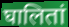
घालितां